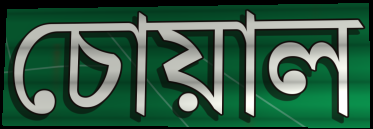
চোয়াল